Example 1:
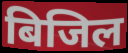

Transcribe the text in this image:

बिजिल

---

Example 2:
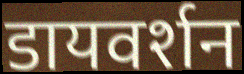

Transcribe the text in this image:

डायवर्शन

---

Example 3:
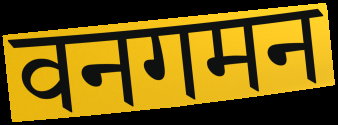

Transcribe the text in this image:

वनगमन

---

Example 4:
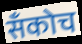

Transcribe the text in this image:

सँकोच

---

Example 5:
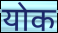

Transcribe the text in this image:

योक